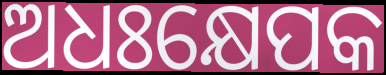
ଅଧଃକ୍ଷେପକ